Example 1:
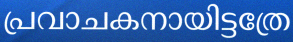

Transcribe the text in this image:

പ്രവാചകനായിട്ടത്രേ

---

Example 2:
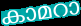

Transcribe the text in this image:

കാമറാ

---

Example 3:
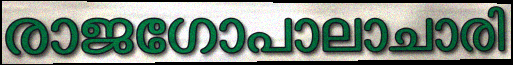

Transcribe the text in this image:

രാജഗോപാലാചാരി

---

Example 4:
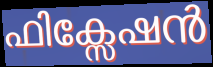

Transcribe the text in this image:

ഫിക്സേഷൻ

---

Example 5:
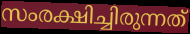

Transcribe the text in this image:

സംരക്ഷിച്ചിരുന്നത്